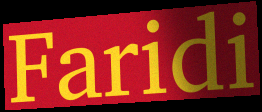
Faridi